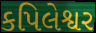
કપિલેશ્વર